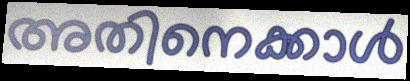
അതിനെക്കാൾ